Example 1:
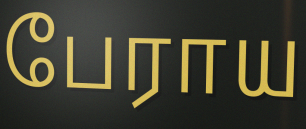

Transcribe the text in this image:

பேராய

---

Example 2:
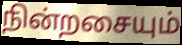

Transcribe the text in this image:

நின்றசையும்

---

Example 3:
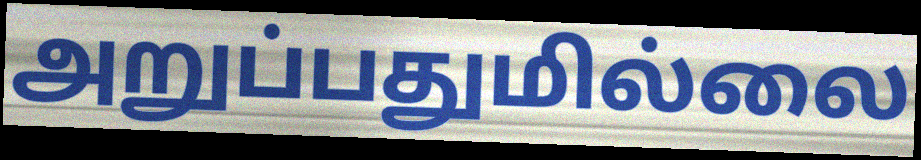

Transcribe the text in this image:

அறுப்பதுமில்லை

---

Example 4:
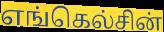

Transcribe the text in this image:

எங்கெல்சின்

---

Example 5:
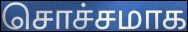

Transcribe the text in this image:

சொச்சமாக